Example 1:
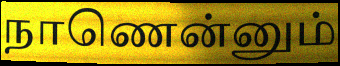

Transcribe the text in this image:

நாணென்னும்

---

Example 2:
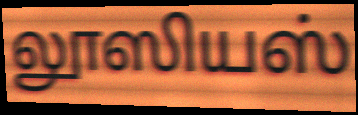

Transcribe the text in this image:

லூஸியஸ்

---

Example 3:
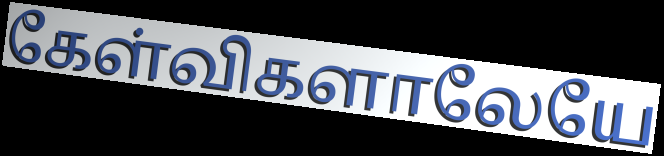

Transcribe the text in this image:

கேள்விகளாலேயே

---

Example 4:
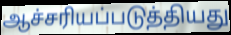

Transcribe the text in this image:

ஆச்சரியப்படுத்தியது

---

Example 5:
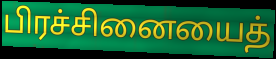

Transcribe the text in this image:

பிரச்சினையைத்